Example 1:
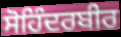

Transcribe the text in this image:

ਸੋਹਿੰਦਰਬੀਰ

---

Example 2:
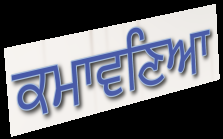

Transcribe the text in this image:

ਕਮਾਵਣਿਆ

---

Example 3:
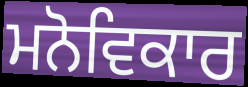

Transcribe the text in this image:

ਮਨੋਵਿਕਾਰ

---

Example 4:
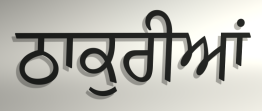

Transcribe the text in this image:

ਠਾਕੁਰੀਆਂ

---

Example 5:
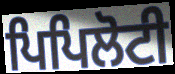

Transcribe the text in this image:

ਪਿਪਿਲੋਟੀ